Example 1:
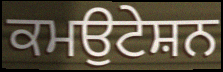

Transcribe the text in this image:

ਕਮਉਟੇਸ਼ਨ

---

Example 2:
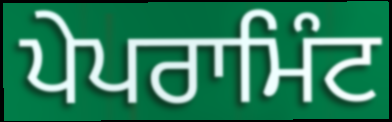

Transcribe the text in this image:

ਪੇਪਰਾਮਿੰਟ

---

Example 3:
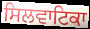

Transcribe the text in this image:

ਸਿਲਵਾਟਿਕਾ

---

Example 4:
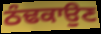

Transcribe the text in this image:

ਠੰਢਕਾਉਣ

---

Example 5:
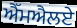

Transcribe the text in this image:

ਐੱਮਐਲਏ